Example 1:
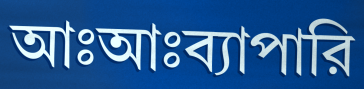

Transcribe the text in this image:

আঃআঃব্যাপারি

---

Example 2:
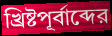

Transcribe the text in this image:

খ্রিষ্টপূর্বাব্দের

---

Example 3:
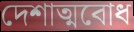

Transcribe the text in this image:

দেশাত্মবোধ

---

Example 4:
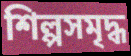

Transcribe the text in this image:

শিল্পসমৃদ্ধ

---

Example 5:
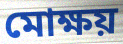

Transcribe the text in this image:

মোক্ষয়